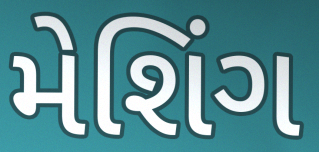
મેશિંગ